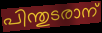
പിന്തുടരാന്